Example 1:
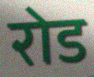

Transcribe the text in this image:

रोड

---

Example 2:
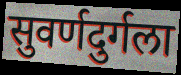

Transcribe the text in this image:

सुवर्णदुर्गला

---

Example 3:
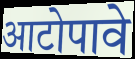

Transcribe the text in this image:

आटोपावे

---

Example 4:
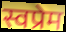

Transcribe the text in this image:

स्वप्रेम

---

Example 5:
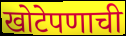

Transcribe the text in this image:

खोटेपणाची